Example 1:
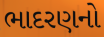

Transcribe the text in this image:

ભાદરણનો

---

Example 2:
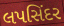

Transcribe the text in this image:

લપસિંદર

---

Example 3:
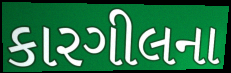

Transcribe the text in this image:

કારગીલના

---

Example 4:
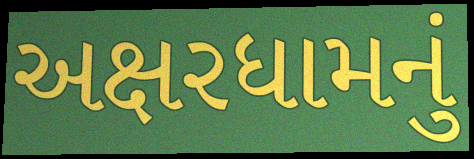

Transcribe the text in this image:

અક્ષરધામનું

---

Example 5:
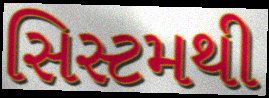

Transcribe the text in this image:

સિસ્ટમથી